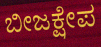
ಬೀಜಕ್ಷೇಪ